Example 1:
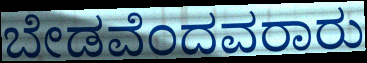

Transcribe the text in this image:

ಬೇಡವೆಂದವರಾರು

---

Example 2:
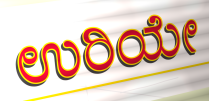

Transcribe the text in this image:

ಉರಿಯೇ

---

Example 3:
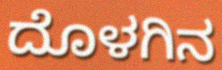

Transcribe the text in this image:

ದೊಳಗಿನ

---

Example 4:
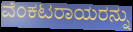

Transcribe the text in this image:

ವೆಂಕಟರಾಯರನ್ನು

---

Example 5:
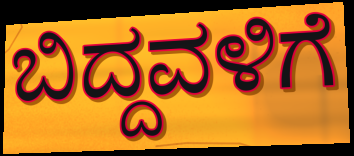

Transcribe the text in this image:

ಬಿದ್ದವಳಿಗೆ